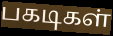
பகடிகள்